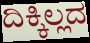
ದಿಕ್ಕಿಲ್ಲದ